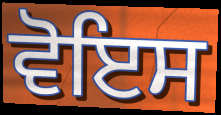
ਵੋਇਸ